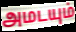
அமடயும்